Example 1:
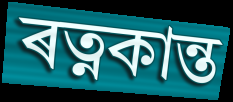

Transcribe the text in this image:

ৰত্নকান্ত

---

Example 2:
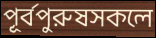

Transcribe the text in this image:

পূৰ্বপুৰুষসকলে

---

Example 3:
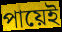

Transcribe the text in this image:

পায়েই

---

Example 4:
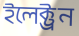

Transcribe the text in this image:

ইলেক্ট্ৰন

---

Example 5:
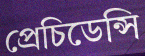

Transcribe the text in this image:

প্ৰেচিডেন্সি